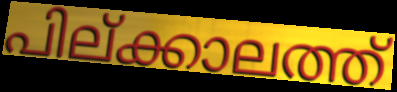
പില്ക്കാലത്ത്